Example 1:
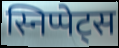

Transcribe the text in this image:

स्निप्पेट्स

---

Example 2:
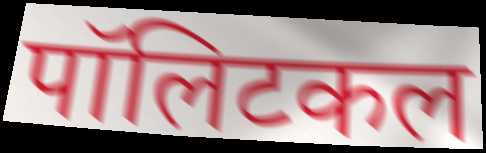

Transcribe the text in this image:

पॉलिटकल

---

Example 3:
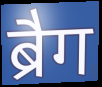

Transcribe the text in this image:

ब्रैग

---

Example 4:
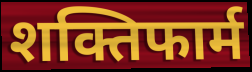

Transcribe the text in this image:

शक्तिफार्म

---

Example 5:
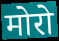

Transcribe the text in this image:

मोरो